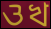
ওখ